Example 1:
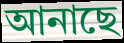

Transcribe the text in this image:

আনাছে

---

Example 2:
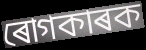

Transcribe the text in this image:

ৰোগকাৰক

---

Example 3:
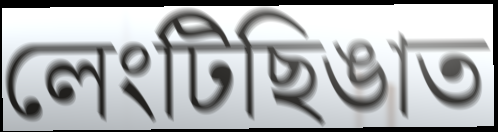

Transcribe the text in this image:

লেংটিছিঙাত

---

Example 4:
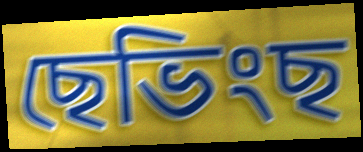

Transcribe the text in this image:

ছেভিংছ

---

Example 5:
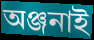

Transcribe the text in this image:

অঞ্জনাই